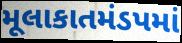
મૂલાકાતમંડપમાં